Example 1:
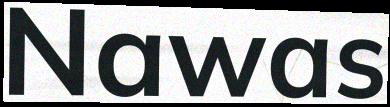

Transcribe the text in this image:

Nawas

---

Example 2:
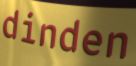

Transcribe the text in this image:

dinden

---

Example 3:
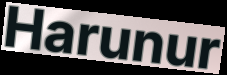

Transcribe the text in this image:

Harunur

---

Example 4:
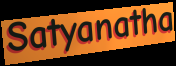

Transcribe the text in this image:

Satyanatha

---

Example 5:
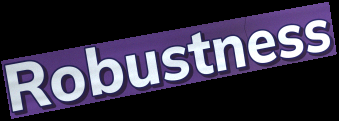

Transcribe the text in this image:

Robustness